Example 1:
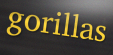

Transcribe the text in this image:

gorillas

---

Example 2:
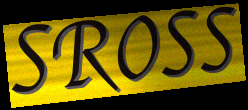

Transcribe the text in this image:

SROSS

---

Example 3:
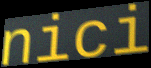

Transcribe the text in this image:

nici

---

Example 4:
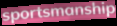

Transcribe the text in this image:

sportsmanship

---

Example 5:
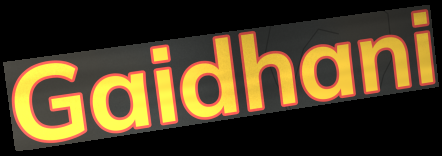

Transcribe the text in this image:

Gaidhani